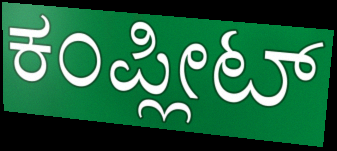
ಕಂಪ್ಲೀಟ್